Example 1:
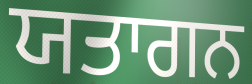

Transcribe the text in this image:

ਯਤਾਗਨ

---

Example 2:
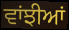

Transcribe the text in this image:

ਵਾਂਝੀਆਂ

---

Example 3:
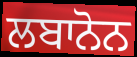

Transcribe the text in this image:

ਲਬਾਨੋਨ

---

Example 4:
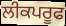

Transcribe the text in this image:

ਲੀਕਪਰੂਫ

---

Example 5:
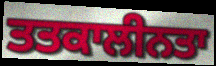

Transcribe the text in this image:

ਤਤਕਾਲੀਨਤਾ